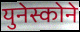
युनेस्कोने